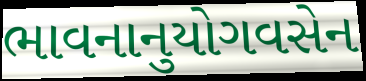
ભાવનાનુયોગવસેન